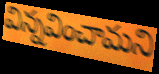
విన్నవించామని